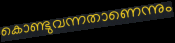
കൊണ്ടുവന്നതാണെന്നും